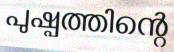
പുഷ്പത്തിന്റെ